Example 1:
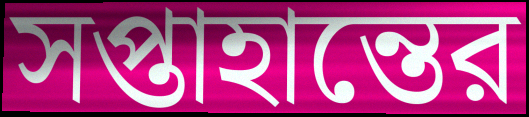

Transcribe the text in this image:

সপ্তাহান্তের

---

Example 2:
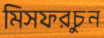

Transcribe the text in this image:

মিসফরচুন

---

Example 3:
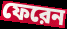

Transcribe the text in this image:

ফেরেন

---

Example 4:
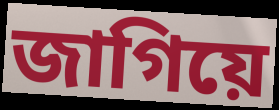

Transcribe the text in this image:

জাগিয়ে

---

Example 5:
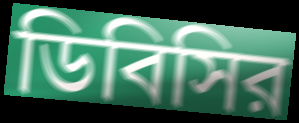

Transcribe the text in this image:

ডিবিসির